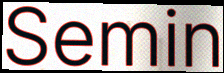
Semin